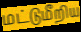
மட்டுமீறிய